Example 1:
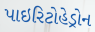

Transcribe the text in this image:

પાઇરિટોહેડ્રોન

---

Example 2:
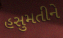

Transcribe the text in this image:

હસુમતીને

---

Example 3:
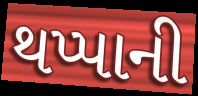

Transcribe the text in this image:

થપ્પાની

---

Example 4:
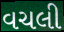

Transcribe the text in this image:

વચલી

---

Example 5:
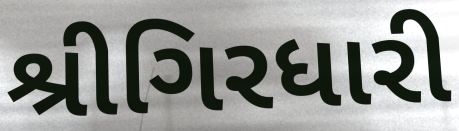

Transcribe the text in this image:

શ્રીગિરધારી